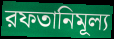
রফতানিমূল্য